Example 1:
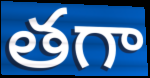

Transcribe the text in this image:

తగా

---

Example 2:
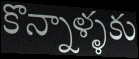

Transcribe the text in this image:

కొన్నాళ్ళకు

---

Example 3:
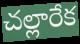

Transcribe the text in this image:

చల్లారేక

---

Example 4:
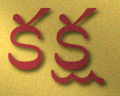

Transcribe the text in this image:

కక్ష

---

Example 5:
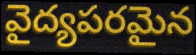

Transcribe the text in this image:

వైద్యపరమైన